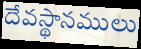
దేవస్థానములు